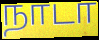
நாடா